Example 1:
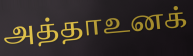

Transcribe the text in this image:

அத்தாஉனக்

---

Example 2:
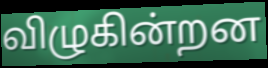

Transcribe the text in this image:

விழுகின்றன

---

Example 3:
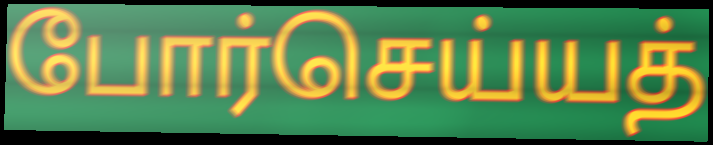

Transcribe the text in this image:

போர்செய்யத்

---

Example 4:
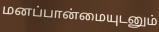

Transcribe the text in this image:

மனப்பான்மையுடனும்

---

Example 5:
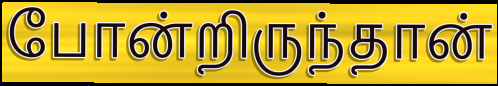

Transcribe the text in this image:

போன்றிருந்தான்